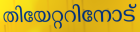
തിയേറ്ററിനോട്